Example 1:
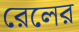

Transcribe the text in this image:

রেলের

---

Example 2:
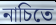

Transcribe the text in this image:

নাচিতে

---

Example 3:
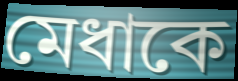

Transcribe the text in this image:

মেধাকে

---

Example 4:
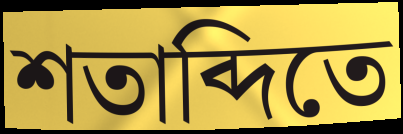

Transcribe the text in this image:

শতাব্দিতে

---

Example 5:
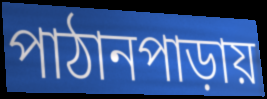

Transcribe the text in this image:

পাঠানপাড়ায়